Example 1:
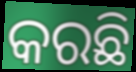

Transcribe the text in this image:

କରଛି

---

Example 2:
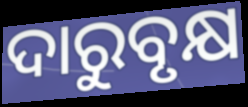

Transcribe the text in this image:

ଦାରୁବୃକ୍ଷ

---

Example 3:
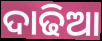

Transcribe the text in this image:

ଦାଢିଆ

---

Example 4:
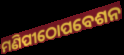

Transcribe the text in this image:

ମଣିପୀଠୋପବେଶନ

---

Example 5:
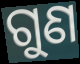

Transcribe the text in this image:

ଗୁଣ